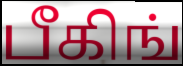
பீகிங்